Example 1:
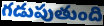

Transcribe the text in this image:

గడుపుతుంది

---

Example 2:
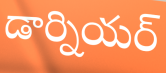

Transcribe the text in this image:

డార్నియర్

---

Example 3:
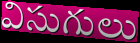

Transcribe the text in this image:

విసుగులు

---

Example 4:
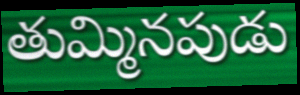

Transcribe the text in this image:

తుమ్మినపుడు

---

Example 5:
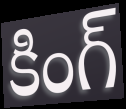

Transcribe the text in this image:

కింగ్